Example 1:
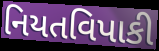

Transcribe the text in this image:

નિયતવિપાકી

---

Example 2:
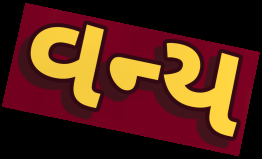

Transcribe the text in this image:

વન્ય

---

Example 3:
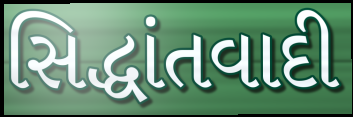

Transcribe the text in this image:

સિદ્ધાંતવાદી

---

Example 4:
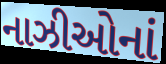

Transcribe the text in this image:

નાઝીઓનાં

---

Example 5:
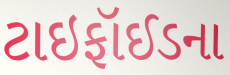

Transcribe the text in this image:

ટાઇફૉઈડના